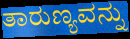
ತಾರುಣ್ಯವನ್ನು